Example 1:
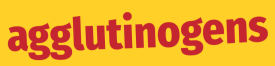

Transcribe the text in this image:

agglutinogens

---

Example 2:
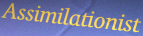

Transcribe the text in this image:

Assimilationist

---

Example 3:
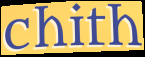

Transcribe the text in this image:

chith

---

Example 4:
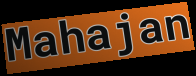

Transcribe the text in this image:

Mahajan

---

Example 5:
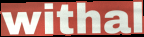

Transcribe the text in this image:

withal